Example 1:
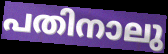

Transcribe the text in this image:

പതിനാലു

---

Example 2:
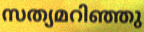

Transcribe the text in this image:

സത്യമറിഞ്ഞു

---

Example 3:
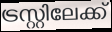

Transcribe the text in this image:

ട്രസ്റ്റിലേക്ക്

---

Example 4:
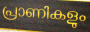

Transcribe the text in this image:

പ്രാണികളും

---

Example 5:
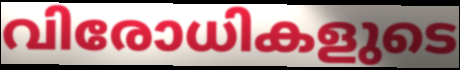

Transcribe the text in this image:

വിരോധികളുടെ